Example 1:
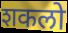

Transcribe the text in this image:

शकलो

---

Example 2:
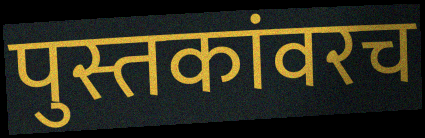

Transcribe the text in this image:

पुस्तकांवरच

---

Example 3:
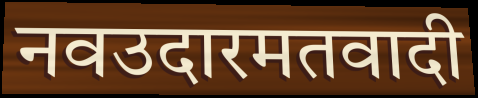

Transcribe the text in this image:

नवउदारमतवादी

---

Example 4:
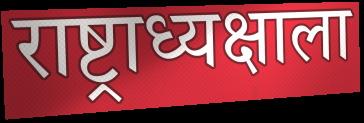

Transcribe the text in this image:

राष्ट्राध्यक्षाला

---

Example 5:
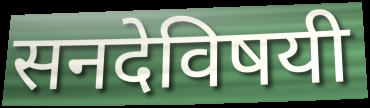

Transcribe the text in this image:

सनदेविषयी